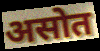
असोत